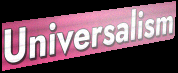
Universalism